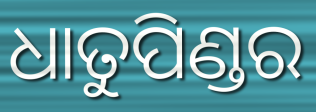
ଧାତୁପିଣ୍ଡର